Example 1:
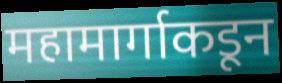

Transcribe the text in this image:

महामार्गाकडून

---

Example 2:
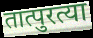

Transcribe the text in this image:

तात्पुरत्या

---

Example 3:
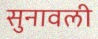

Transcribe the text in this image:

सुनावली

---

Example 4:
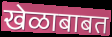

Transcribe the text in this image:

खेळाबाबत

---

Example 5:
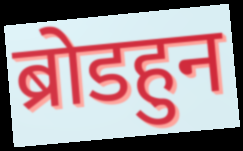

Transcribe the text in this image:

ब्रोडहुन